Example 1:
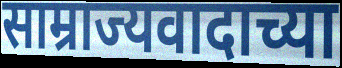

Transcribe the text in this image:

साम्राज्यवादाच्या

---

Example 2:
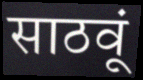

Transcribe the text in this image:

साठवूं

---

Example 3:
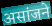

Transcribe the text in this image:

असांजने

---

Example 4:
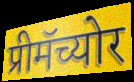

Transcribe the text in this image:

प्रीमॅच्योर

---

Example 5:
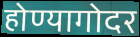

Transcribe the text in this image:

होण्यागोदर